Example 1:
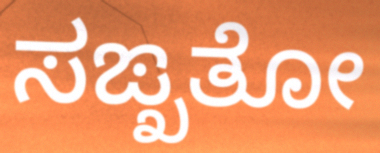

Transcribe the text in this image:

ಸಙ್ಖತೋ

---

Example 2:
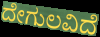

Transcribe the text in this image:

ದೇಗುಲವಿದೆ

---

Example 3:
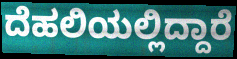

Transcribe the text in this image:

ದೆಹಲಿಯಲ್ಲಿದ್ದಾರೆ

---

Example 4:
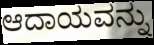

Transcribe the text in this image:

ಆದಾಯವನ್ನು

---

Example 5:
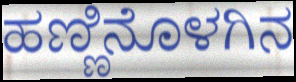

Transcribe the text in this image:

ಹಣ್ಣಿನೊಳಗಿನ